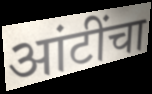
आंटींचा